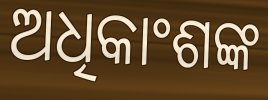
ଅଧିକାଂଶଙ୍କ